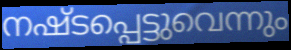
നഷ്ടപ്പെട്ടുവെന്നും